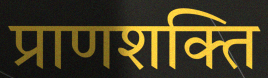
प्राणशक्ति